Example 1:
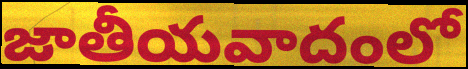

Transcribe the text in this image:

జాతీయవాదంలో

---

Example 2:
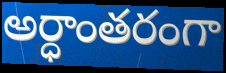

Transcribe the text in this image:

అర్ధాంతరంగా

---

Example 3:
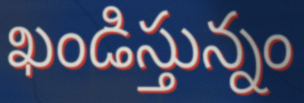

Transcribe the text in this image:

ఖండిస్తున్నం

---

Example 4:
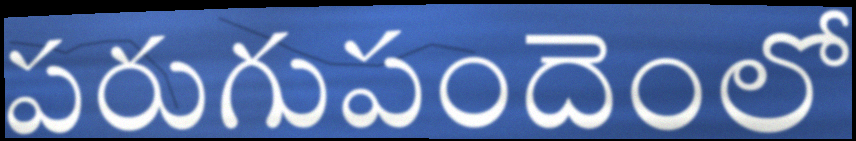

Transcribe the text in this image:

పరుగుపందెంలో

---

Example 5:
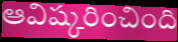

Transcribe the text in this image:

ఆవిష్కరించింది